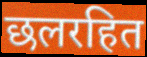
छलरहित